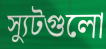
স্যুটগুলো